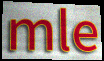
mle